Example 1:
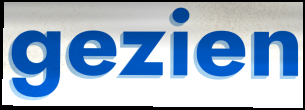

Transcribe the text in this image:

gezien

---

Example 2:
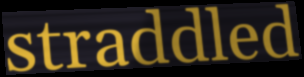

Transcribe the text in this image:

straddled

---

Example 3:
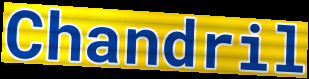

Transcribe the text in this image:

Chandril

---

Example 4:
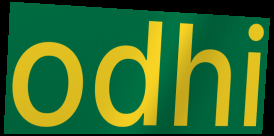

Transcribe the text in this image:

odhi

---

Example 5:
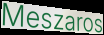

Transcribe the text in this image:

Meszaros